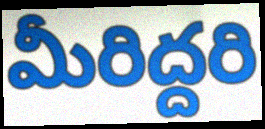
మీరిద్దరి